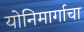
योनिमार्गाचा